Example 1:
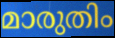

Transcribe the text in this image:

മാരുതിം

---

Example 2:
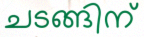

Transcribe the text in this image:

ചടങ്ങിന്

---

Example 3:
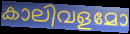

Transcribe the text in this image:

കാലിവളമോ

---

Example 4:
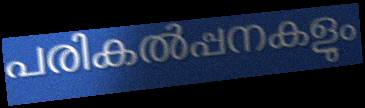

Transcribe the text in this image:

പരികൽപ്പനകളും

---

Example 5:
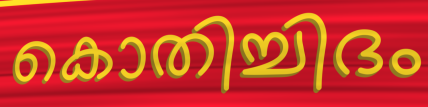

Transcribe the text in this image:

കൊതിച്ചിദം